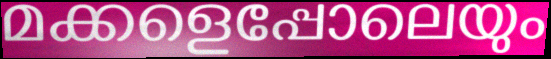
മക്കളെപ്പോലെയും